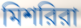
মিশরিরা